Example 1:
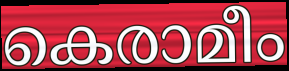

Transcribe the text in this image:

കെരാമീം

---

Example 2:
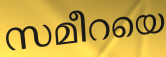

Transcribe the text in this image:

സമീറയെ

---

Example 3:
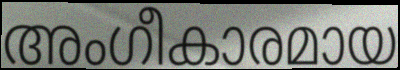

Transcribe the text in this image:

അംഗീകാരമായ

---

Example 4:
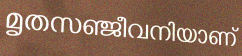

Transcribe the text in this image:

മൃതസഞ്ജീവനിയാണ്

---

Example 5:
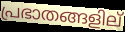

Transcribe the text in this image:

പ്രഭാതങ്ങളില്